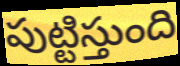
పుట్టిస్తుంది